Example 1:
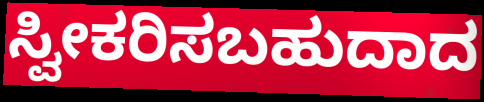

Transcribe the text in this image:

ಸ್ವೀಕರಿಸಬಹುದಾದ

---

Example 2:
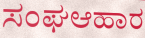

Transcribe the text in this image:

ಸಂಘಆಹಾರ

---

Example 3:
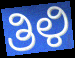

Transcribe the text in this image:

ತಿಳಿ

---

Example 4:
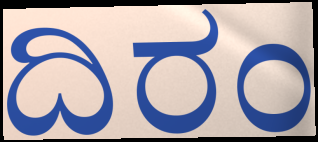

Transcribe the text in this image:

ದಿರಂ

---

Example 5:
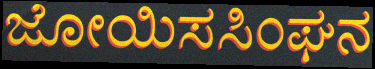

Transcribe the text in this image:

ಜೋಯಿಸಸಿಂಘನ